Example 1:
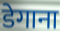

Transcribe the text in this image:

डेगाना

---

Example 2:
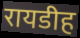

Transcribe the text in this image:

रायडीह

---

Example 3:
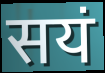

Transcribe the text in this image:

सयं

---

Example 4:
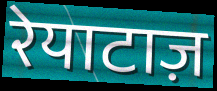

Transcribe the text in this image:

रेयाटाज़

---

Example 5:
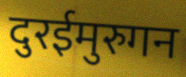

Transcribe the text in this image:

दुरईमुरुगन